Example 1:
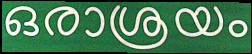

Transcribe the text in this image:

ഒരാശ്രയം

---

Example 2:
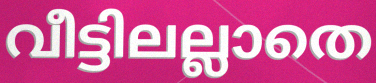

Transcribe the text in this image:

വീട്ടിലല്ലാതെ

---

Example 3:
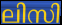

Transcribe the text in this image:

ലിസി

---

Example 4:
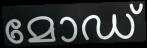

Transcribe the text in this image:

മോഡ്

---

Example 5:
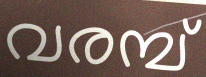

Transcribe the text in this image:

വരമ്പ്